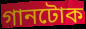
গানটোক